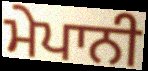
ਮੇਪਾਨੀ